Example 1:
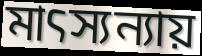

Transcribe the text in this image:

মাৎস্যন্যায়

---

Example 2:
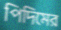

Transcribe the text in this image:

পিদিমের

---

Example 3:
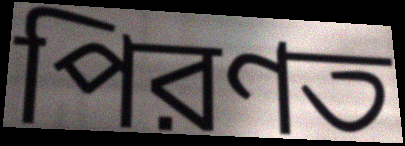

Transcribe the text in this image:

পিরণত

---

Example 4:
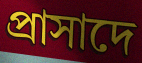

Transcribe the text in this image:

প্রাসাদে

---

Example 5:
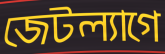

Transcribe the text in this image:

জেটল্যাগে